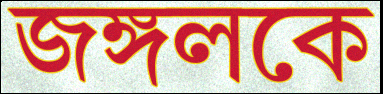
জঙ্গলকে